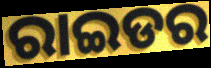
ରାଇଡର